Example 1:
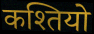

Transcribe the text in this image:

कश्तियो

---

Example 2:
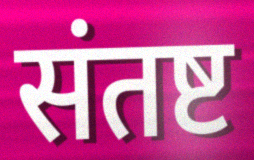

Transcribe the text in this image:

संतष्ट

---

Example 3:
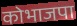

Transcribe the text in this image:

कोभाजपा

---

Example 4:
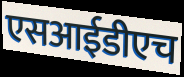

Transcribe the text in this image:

एसआईडीएच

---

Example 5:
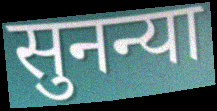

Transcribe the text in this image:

सुनन्या